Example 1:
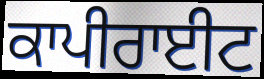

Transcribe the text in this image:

ਕਾਪੀਰਾਈਟ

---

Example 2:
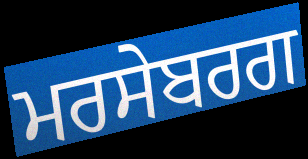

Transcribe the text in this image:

ਮਰਸੇਬਰਗ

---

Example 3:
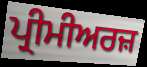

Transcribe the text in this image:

ਪ੍ਰੀਮੀਅਰਜ਼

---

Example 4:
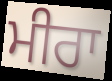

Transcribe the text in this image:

ਮੀਰਾ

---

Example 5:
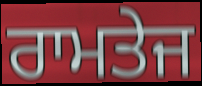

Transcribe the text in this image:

ਰਾਮਤੇਜ